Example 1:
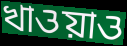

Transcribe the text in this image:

খাওয়াও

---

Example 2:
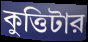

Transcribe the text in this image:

কুত্তিটার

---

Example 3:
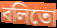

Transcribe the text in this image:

বলিতো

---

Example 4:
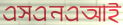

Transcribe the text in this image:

এসএনএআই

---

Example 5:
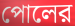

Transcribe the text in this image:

পোলের